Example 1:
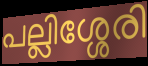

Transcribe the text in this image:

പല്ലിശ്ശേരി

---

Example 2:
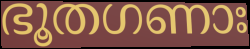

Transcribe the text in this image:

ഭൂതഗണാഃ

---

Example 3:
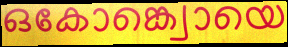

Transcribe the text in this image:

ഒകോങ്ക്വൊയെ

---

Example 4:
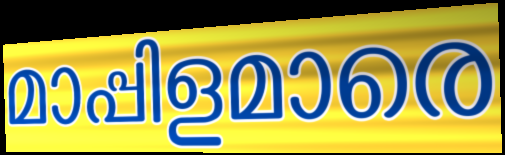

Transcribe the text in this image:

മാപ്പിളമാരെ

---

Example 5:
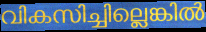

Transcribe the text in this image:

വികസിച്ചില്ലെങ്കിൽ